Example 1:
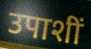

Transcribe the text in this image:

उपाशीं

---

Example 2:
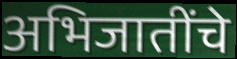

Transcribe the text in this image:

अभिजातींचे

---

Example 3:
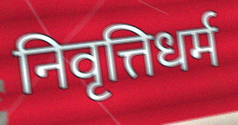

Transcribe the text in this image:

निवृत्तिधर्म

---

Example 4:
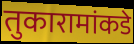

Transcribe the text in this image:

तुकारामांकडे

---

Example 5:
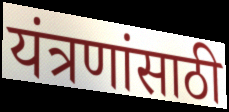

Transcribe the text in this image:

यंत्रणांसाठी